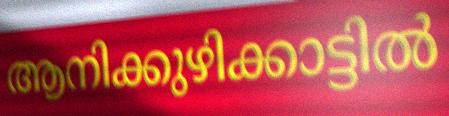
ആനിക്കുഴിക്കാട്ടിൽ